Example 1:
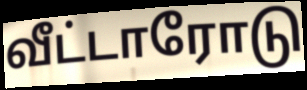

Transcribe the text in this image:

வீட்டாரோடு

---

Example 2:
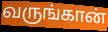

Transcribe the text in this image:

வருங்கான்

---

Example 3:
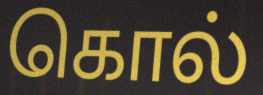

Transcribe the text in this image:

கொல்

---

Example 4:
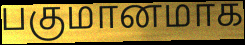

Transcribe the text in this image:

பகுமானமாக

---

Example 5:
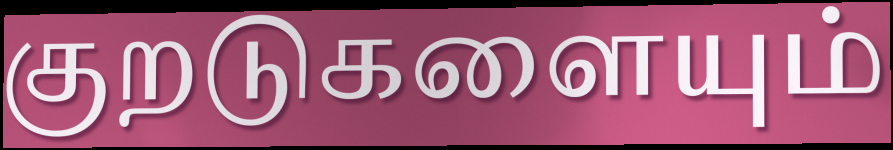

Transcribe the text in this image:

குறடுகளையும்